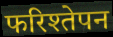
फरिश्तेपन